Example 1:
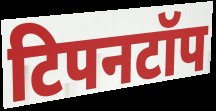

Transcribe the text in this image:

टिपनटॉप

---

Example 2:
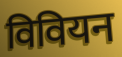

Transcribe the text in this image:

विवियन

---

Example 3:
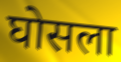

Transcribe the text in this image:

घोसला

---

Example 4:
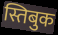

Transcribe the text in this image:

स्तिबुक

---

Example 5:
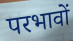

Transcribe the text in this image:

परभावों